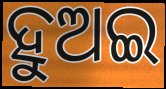
ହୁଅଇ